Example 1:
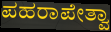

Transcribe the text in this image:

ಪಹರಾಪೇತ್ವಾ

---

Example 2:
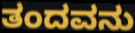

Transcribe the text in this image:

ತಂದವನು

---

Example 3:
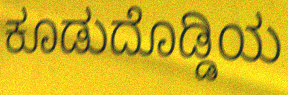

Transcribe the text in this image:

ಕೂಡುದೊಡ್ಡಿಯ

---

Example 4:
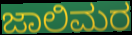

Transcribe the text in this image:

ಜಾಲಿಮರ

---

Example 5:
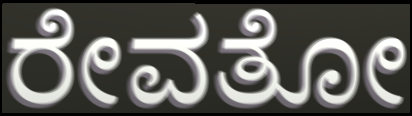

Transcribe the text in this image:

ರೇವತೋ